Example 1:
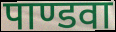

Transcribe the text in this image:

पाण्डवा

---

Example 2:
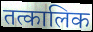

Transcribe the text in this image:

तत्कालिक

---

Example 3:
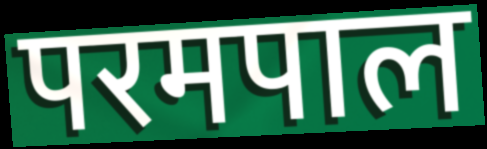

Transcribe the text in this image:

परमपाल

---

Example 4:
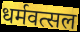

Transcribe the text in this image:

धर्मवत्सल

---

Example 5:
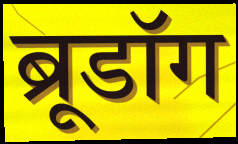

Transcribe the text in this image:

ब्रूडॉग